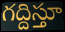
గద్దిస్తూ